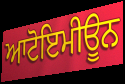
ਆਟੋਇਮੀਊਨ